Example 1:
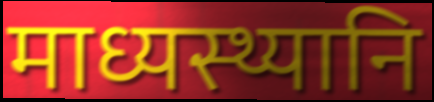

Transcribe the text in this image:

माध्यस्थ्यानि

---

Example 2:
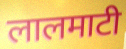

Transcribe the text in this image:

लालमाटी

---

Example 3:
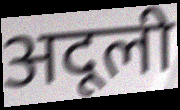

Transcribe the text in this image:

अदूली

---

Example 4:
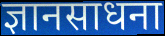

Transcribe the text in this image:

ज्ञानसाधना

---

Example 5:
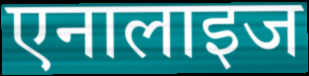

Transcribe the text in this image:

एनालाइज